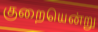
குறையென்று